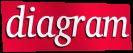
diagram